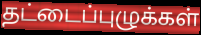
தட்டைப்புழுக்கள்